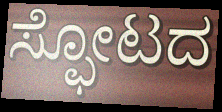
ಸ್ಫೋಟದ